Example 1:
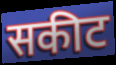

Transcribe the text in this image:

सकीट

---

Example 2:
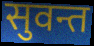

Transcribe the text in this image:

सुवन्त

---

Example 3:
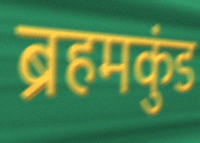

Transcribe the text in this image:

ब्रहमकुंड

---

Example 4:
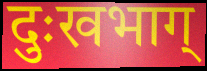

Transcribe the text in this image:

दुःखभाग्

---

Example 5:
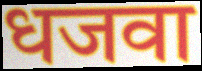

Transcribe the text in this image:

धजवा